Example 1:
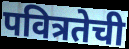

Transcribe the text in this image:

पवित्रतेची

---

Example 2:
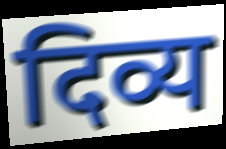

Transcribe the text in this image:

दिव्य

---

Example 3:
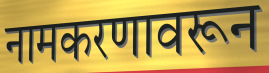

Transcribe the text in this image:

नामकरणावरून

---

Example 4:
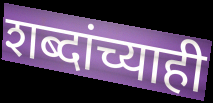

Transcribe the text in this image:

शब्दांच्याही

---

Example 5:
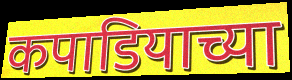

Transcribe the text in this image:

कपाडियाच्या